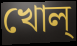
খোল্